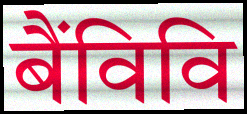
बैंविवि